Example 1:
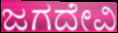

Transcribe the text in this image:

ಜಗದೇವಿ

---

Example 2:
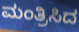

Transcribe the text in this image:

ಮಂತ್ರಿಸಿದ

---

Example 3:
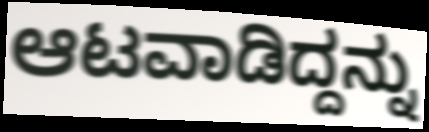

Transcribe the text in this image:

ಆಟವಾಡಿದ್ದನ್ನು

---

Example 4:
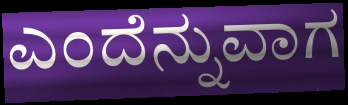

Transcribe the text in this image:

ಎಂದೆನ್ನುವಾಗ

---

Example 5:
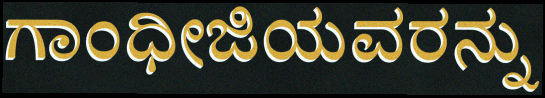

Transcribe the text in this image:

ಗಾಂಧೀಜಿಯವರನ್ನು